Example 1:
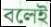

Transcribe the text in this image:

বলেই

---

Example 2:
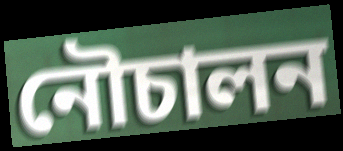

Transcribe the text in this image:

নৌচালন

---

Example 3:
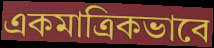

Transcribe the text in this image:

একমাত্রিকভাবে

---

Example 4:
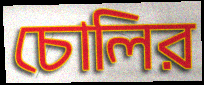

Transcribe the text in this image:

চোলির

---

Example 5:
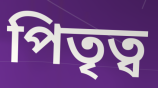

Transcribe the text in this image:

পিতৃত্ব